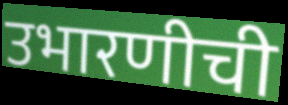
उभारणीची